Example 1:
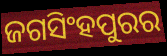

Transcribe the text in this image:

ଜଗସିଂହପୁରର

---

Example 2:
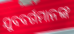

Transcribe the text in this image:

ଯୁବବର୍ଗମାନଙ୍କ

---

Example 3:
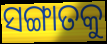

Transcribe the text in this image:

ସଙ୍ଗାତକୁ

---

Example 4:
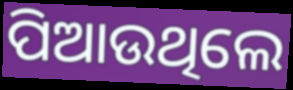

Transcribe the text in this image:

ପିଆଉଥିଲେ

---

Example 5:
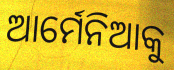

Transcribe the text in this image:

ଆର୍ମେନିଆକୁ